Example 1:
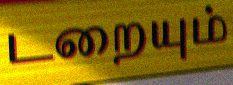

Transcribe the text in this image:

டறையும்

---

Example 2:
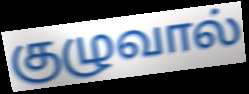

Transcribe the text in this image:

குழுவால்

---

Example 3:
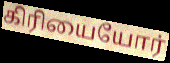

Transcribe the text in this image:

கிரியையோர்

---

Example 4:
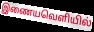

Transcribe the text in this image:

இணையவெளியில்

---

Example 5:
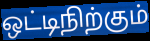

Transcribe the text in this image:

ஒட்டிநிற்கும்